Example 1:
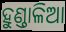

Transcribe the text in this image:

ହୁଣ୍ଡାଳିଆ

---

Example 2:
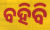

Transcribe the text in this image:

ବହିବି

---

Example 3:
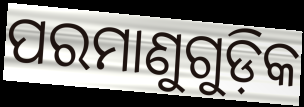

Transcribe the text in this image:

ପରମାଣୁଗୁଡ଼ିକ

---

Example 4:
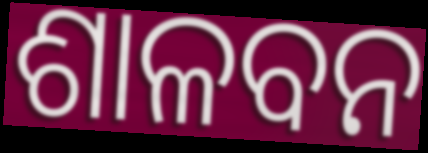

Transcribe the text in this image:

ଶାଳବନ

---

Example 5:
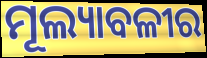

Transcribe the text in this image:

ମୂଲ୍ୟାବଳୀର